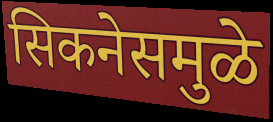
सिकनेसमुळे